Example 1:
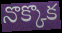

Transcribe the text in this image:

నొక్కొక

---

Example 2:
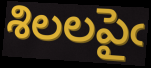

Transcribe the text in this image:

శిలలపైఁ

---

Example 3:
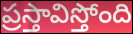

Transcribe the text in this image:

ప్రస్తావిస్తోంది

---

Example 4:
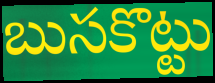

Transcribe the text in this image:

బుసకొట్టు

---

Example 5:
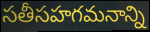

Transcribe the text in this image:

సతీసహగమనాన్ని